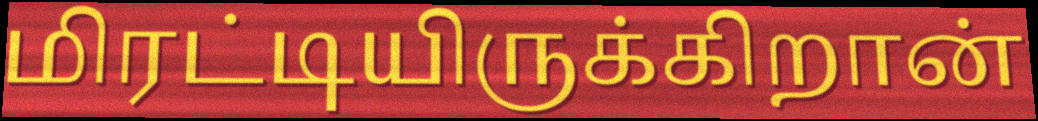
மிரட்டியிருக்கிறான்